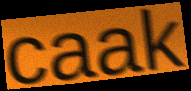
caak